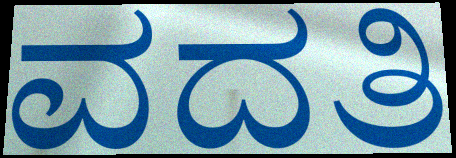
ವದತಿ